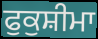
ਫੁਕੁਸ਼ੀਮਾ